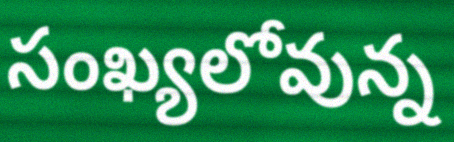
సంఖ్యలోవున్న